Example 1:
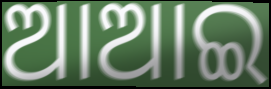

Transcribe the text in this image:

ଆଆଇ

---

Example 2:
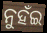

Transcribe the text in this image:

ନୁହଁଇ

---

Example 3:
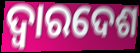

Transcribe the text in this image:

ଦ୍ୱାରଦେଶ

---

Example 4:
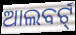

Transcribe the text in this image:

ଆଲବର୍ଟ୍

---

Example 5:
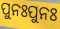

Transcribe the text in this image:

ପୁନଃପୁନଃ